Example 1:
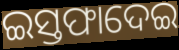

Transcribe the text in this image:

ଇସ୍ତଫାଦେଇ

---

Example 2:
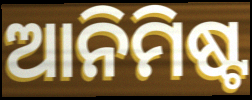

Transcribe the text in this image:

ଆନିମିଷ୍ଟ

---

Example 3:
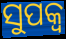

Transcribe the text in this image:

ସୁପକ୍ବ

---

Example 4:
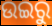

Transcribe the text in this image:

ଉଇରୁ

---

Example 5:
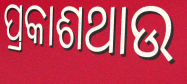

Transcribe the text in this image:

ପ୍ରକାଶଥାଉ